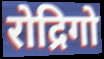
रोद्रिगो